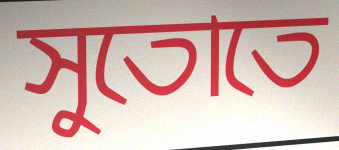
সুতোতে